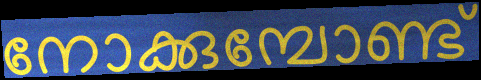
നോക്കുമ്പോണ്ട്